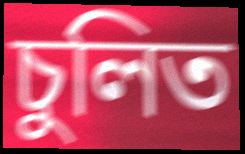
চুলিত